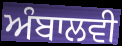
ਅੰਬਾਲਵੀ